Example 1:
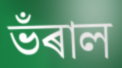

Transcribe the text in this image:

ভঁৰাল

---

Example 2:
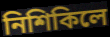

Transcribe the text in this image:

নিশিকিলে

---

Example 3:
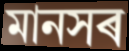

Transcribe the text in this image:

মানসৰ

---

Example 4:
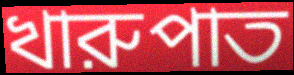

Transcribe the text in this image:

খাৰুপাত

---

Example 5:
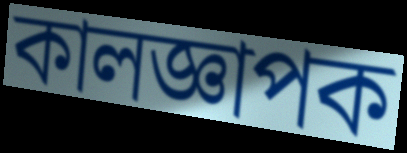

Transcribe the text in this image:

কালজ্ঞাপক